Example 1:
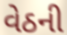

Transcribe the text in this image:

વેઠની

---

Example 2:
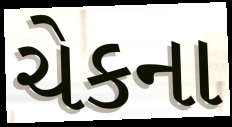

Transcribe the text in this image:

ચેકના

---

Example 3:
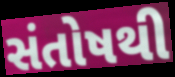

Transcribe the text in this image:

સંતોષથી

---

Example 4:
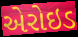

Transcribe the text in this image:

એરોઇડ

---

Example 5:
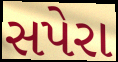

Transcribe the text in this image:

સપેરા